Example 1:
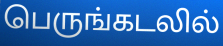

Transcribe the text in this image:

பெருங்கடலில்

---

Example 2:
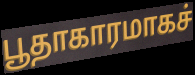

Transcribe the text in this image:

பூதாகாரமாகச்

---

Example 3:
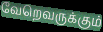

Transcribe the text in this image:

வேறெவருக்கும்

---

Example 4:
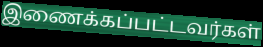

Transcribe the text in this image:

இணைக்கப்பட்டவர்கள்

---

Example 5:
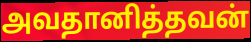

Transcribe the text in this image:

அவதானித்தவன்